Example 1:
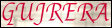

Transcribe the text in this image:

GUJRERA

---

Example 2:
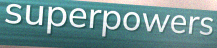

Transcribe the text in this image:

superpowers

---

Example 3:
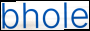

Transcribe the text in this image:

bhole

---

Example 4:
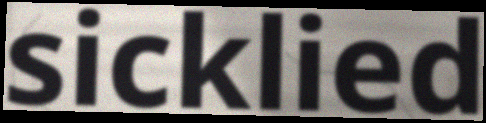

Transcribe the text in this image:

sicklied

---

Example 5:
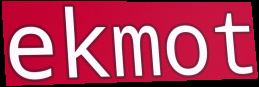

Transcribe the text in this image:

ekmot